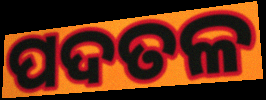
ପଦତଳ